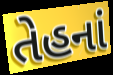
તેહનાં